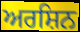
ਅਰਸ਼ਿਨ